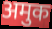
अमुक